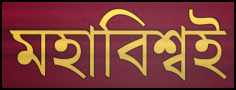
মহাবিশ্বই